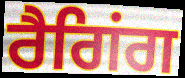
ਰੈਗਿਂਗ